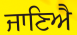
ਜਾਣਿਐ